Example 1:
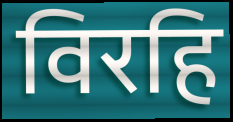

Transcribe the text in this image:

विरहि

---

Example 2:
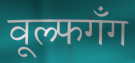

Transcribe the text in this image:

वूल्फगँग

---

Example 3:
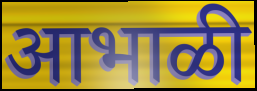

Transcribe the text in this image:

आभाळी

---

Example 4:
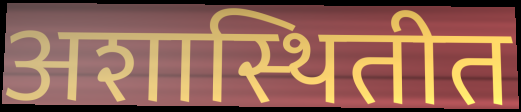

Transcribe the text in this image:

अशास्थितीत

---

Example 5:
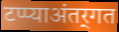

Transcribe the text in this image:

टप्प्याअंतर्गत